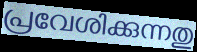
പ്രവേശിക്കുന്നതു